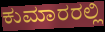
ಕುಮಾರರಲ್ಲಿ